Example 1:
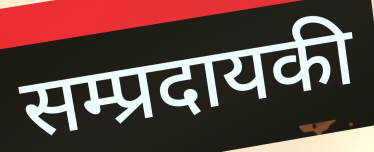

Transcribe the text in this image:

सम्प्रदायकी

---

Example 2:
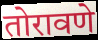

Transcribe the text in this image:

तोरावणे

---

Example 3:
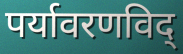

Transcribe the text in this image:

पर्यावरणविद्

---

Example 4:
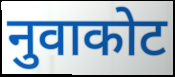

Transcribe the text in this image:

नुवाकोट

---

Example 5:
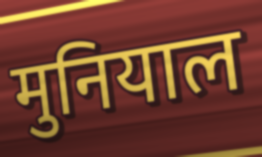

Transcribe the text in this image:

मुनियाल